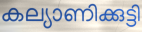
കല്യാണിക്കുട്ടി